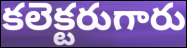
కలెక్టరుగారు